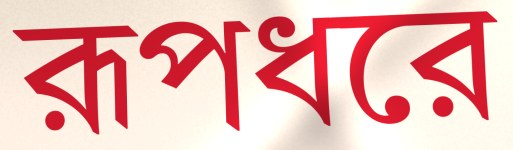
রূপধরে